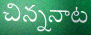
చిన్ననాట